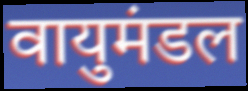
वायुमंडल